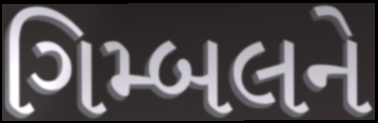
ગિમ્બલને